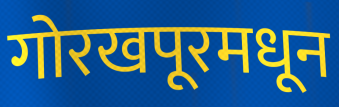
गोरखपूरमधून